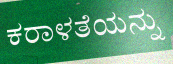
ಕರಾಳತೆಯನ್ನು